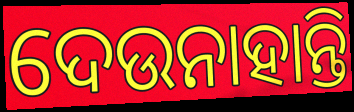
ଦେଉନାହାନ୍ତି